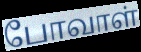
போவாள்